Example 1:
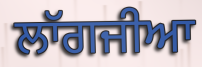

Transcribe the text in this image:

ਲਾੱਗਜੀਆ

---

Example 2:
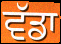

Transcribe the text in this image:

ਵੱਡਾ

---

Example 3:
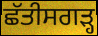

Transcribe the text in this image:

ਛੱਤੀਸਗੜ੍ਹ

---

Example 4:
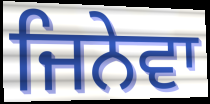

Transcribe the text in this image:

ਜਿਨੇਵਾ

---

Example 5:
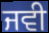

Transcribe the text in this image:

ਜਵੀ